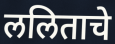
ललिताचे